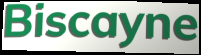
Biscayne